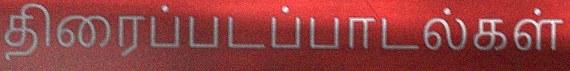
திரைப்படப்பாடல்கள்